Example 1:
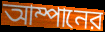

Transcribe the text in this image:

আম্পানের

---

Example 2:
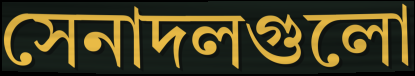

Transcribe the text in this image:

সেনাদলগুলো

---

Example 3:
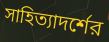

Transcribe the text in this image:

সাহিত্যাদর্শের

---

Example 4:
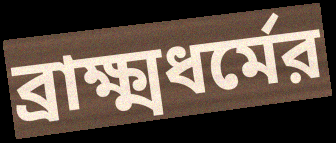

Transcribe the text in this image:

ব্রাক্ষ্মধর্মের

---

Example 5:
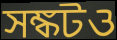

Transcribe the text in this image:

সঙ্কটও